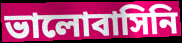
ভালোবাসিনি